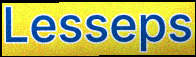
Lesseps